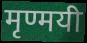
मृण्मयी